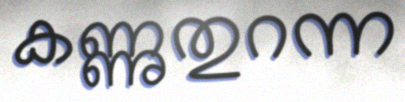
കണ്ണുതുറന്ന